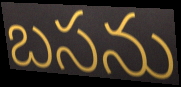
బసను